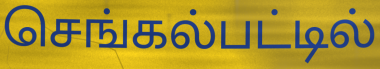
செங்கல்பட்டில்